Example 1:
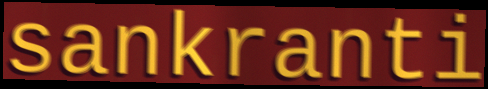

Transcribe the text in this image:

sankranti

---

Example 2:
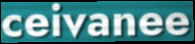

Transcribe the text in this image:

ceivanee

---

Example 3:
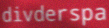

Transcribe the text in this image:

divderspa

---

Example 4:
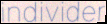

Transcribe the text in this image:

individer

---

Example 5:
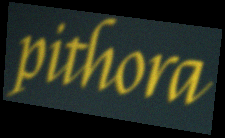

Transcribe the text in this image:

pithora